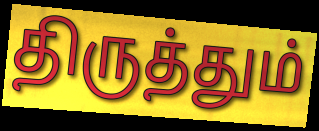
திருத்தும்